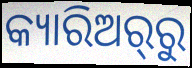
କ୍ୟାରିଅର୍‌ରୁ